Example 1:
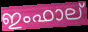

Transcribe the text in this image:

ഇംഫാല്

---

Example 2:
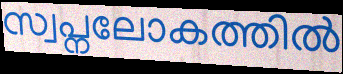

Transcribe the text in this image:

സ്വപ്നലോകത്തിൽ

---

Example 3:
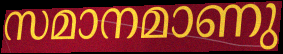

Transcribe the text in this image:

സമാനമാണു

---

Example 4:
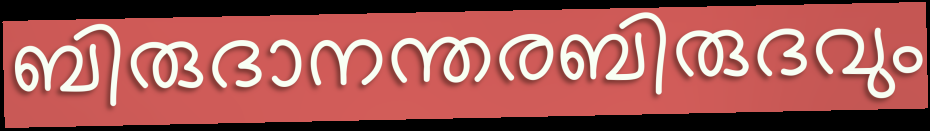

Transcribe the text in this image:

ബിരുദാനന്തരബിരുദവും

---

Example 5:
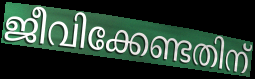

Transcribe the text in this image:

ജീവിക്കേണ്ടതിന്